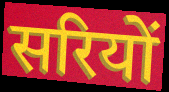
सरियों